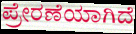
ಪ್ರೇರಣೆಯಾಗಿದೆ